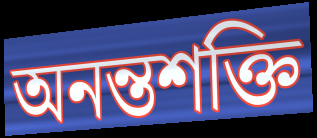
অনন্তশক্তি